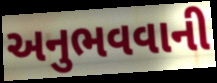
અનુભવવાની